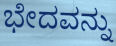
ಭೇದವನ್ನು